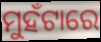
ମୁହଁଟାରେ